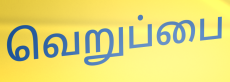
வெறுப்பை